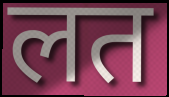
लत